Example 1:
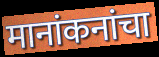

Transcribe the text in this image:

मानांकनांचा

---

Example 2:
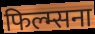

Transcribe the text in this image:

फिल्म्सना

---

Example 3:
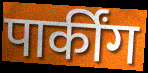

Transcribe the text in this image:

पार्कींग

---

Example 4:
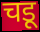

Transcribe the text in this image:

चडू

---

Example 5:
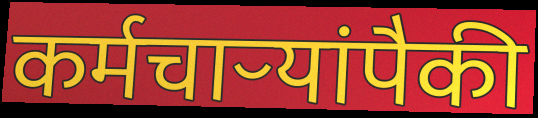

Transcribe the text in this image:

कर्मचाऱ्यांपैकी